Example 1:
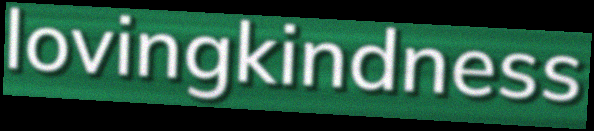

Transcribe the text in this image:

lovingkindness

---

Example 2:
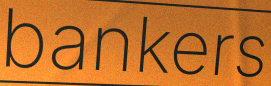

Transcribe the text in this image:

bankers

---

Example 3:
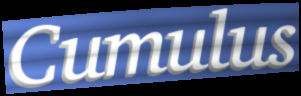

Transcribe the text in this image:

Cumulus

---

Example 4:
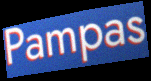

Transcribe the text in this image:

Pampas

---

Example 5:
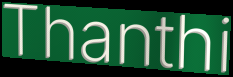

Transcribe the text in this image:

Thanthi